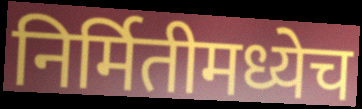
निर्मितीमध्येच